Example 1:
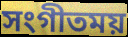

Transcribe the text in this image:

সংগীতময়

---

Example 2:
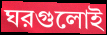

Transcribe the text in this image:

ঘরগুলোই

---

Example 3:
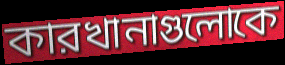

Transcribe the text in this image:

কারখানাগুলোকে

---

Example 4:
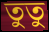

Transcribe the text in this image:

তুতু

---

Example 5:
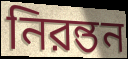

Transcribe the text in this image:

নিরন্তন